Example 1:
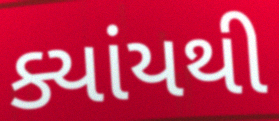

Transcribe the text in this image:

ક્યાંયથી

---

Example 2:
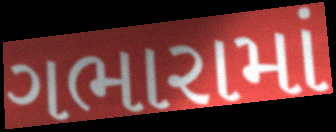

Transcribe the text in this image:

ગભારામાં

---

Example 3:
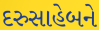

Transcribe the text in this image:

દરુસાહેબને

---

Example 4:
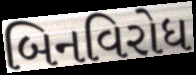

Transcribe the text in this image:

બિનવિરોધ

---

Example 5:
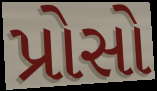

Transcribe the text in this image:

પ્રોસો